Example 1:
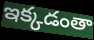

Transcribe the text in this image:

ఇక్కడంతా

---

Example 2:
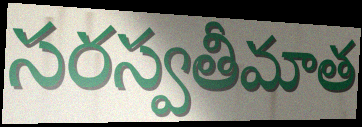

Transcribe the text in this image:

సరస్వతీమాత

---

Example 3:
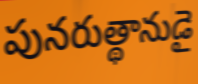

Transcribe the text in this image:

పునరుత్థానుడై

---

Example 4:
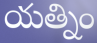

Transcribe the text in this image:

యత్నిం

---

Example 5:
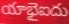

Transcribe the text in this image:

యాభైఐదు